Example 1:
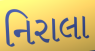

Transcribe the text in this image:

નિરાલા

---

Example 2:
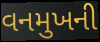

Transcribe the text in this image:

વનમુખની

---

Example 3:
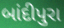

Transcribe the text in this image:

બાંદીપુરા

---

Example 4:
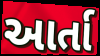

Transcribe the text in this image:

આર્તા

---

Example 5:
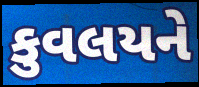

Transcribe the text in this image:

કુવલયને